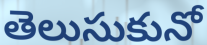
తెలుసుకునో